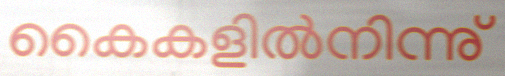
കൈകളിൽനിന്നു്